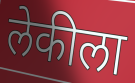
लेकीला